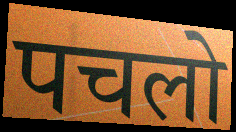
पचलो